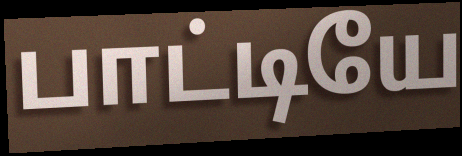
பாட்டியே